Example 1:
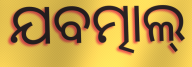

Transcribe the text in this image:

ଯବତ୍ମାଲ୍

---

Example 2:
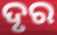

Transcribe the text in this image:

ଦୃର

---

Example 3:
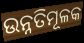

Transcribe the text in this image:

ଉନ୍ନତିମୂଳକ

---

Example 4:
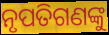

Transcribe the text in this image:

ନୃପତିଗଣଙ୍କୁ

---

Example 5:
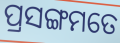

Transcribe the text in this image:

ପ୍ରସଙ୍ଗମତେ